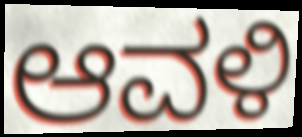
ಆವಳಿ